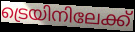
ട്രെയിനിലേക്ക്